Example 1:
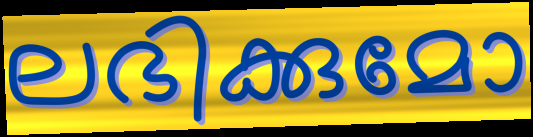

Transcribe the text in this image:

ലഭിക്കുമോ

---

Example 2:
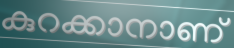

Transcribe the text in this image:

കുറക്കാനാണ്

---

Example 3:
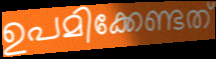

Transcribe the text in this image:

ഉപമിക്കേണ്ടത്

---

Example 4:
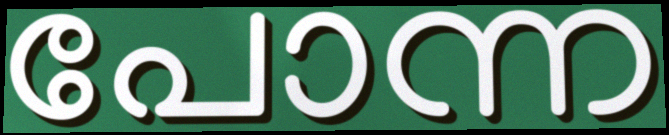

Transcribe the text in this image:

പോന്ന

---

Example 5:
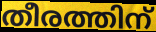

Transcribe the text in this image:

തീരത്തിന്